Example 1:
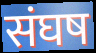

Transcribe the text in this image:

संघष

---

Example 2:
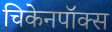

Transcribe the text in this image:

चिकेनपॉक्स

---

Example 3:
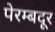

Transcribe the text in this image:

पेरम्बदूर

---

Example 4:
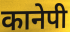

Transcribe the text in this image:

कानेपी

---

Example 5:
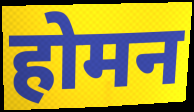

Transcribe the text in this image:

होमन